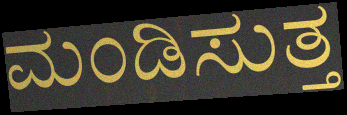
ಮಂಡಿಸುತ್ತ